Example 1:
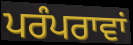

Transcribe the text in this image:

ਪਰੰਪਰਾਵਾਂ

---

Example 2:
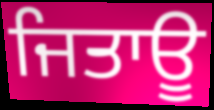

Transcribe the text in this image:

ਜਿਤਾਊ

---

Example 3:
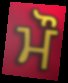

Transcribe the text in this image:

ਮੌ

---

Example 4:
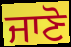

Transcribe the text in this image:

ਜਾਣੋ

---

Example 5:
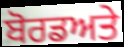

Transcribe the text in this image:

ਬੋਰਡਅਤੇ